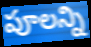
పూలన్ని